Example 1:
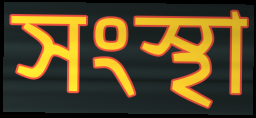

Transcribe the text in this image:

সংস্থা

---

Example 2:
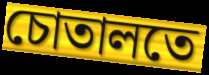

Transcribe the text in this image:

চোতালতে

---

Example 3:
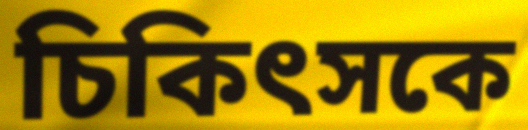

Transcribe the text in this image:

চিকিৎসকে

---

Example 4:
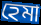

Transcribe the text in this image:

হেমা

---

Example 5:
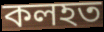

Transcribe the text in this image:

কলহত